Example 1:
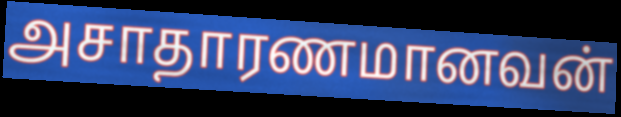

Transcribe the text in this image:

அசாதாரணமானவன்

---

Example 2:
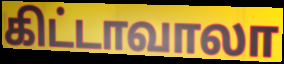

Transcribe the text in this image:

கிட்டாவாலா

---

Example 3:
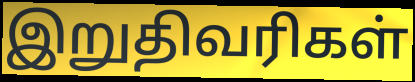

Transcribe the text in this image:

இறுதிவரிகள்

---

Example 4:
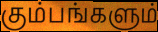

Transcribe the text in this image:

கும்பங்களும்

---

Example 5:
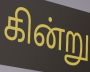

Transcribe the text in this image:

கின்று